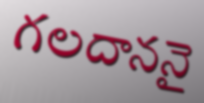
గలదాననై